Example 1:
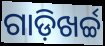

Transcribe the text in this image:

ଗାଡ଼ିଖର୍ଚ୍ଚ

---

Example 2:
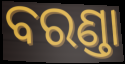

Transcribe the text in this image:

ବରଣ୍ଡା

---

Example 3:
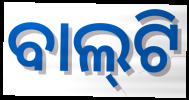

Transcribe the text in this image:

ବାଲ୍‍ଟି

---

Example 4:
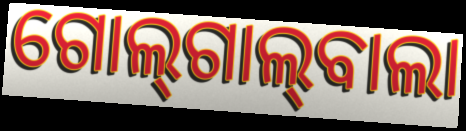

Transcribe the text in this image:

ଗୋଲ୍‍ଗାଲ୍‍ବାଲା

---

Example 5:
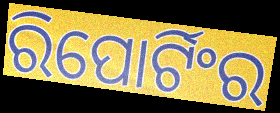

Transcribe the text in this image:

ରିପୋର୍ଟିଂର